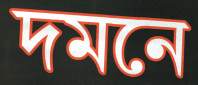
দমনে